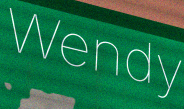
Wendy